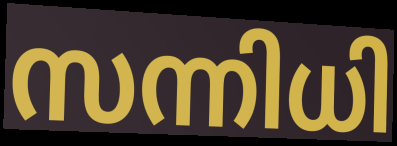
സന്നിധി